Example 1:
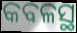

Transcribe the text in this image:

କବଳସ୍ଥ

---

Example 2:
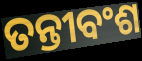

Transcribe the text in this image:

ତନ୍ତୀବଂଶ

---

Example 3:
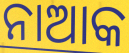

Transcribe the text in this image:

ନାଆକ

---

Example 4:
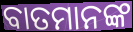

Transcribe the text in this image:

ବାତମାନଙ୍କ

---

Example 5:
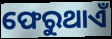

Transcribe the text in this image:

ଫେରୁଥାଏଁ